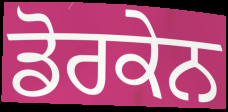
ਡੋਰਕੇਨ